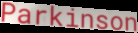
Parkinson